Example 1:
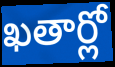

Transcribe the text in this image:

ఖతార్లో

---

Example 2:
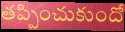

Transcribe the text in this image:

తప్పించుకుందో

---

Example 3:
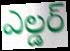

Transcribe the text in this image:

ఎల్డర్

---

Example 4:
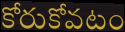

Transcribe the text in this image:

కోరుకోవటం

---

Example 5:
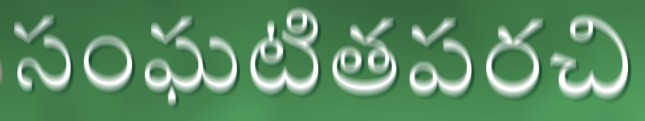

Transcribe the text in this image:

సంఘటితపరచి